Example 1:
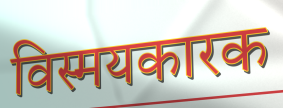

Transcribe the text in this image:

विस्मयकारक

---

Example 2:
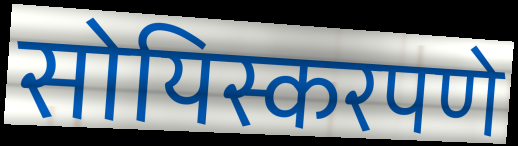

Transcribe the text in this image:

सोयिस्करपणे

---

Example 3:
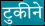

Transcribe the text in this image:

टुकीने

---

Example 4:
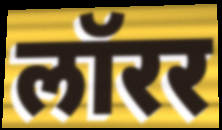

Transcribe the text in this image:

लॉरर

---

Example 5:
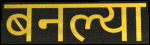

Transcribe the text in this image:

बनल्या